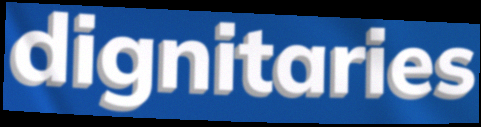
dignitaries